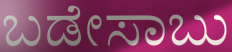
ಬಡೇಸಾಬು